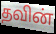
தவின்